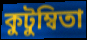
কুটুম্বিতা